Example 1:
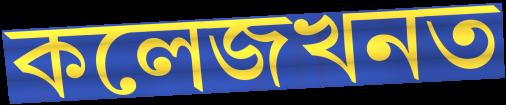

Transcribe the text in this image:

কলেজখনত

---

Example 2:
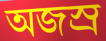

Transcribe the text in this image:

অজস্ৰ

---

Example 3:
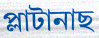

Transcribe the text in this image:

প্লাটানাছ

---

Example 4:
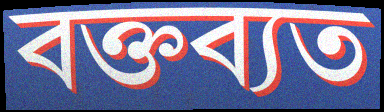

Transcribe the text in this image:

বক্তব্যত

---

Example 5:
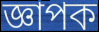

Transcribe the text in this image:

জ্ঞাপক